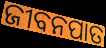
ଜୀବନପାତ